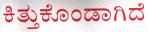
ಕಿತ್ತುಕೊಂಡಾಗಿದೆ